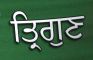
ਤ੍ਰਿਗੁਣ